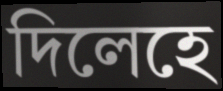
দিলেহে